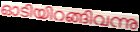
ഓടിയിറങ്ങിവന്നു